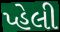
પ્હેલી